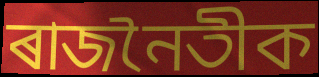
ৰাজনৈতীক